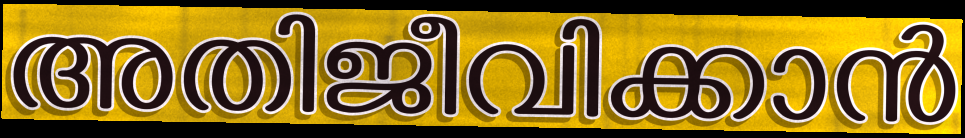
അതിജീവിക്കാൻ